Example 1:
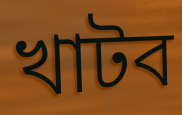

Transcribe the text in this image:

খাটব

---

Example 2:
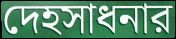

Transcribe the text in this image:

দেহসাধনার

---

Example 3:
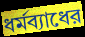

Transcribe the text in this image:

ধর্মব্যাধের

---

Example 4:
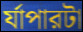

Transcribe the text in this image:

র্যাপারটা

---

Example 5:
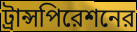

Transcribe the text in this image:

ট্রান্সপিরেশনের